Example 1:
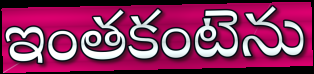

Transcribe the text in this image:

ఇంతకంటెను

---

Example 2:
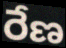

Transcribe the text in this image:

రేణ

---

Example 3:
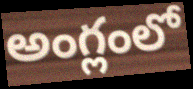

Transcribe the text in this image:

అంగ్లంలో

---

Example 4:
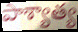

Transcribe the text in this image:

పాశ్యాత్య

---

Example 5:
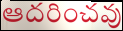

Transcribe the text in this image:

ఆదరించవు